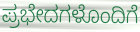
ಪ್ರಭೇದಗಳೊಂದಿಗೆ